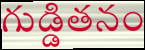
గుడ్డితనం